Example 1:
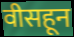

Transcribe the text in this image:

वीसहून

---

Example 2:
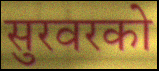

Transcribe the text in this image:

सुरवरको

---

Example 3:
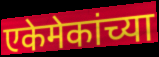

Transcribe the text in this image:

एकेमेकांच्या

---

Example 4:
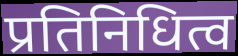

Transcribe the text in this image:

प्रतिनिधित्व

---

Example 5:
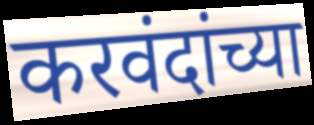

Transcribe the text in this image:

करवंदांच्या